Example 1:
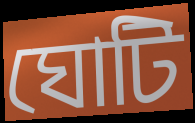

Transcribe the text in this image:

ঘোটি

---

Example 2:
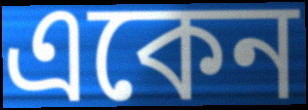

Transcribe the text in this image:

একেন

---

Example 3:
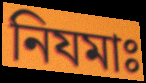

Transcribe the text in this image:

নিযমাঃ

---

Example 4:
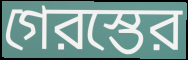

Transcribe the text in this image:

গেরস্তের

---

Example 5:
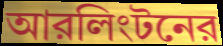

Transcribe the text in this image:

আরলিংটনের